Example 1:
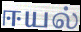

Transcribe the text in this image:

ஈயல்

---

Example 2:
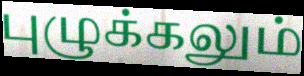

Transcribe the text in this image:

புழுக்கலும்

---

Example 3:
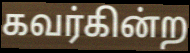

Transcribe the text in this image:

கவர்கின்ற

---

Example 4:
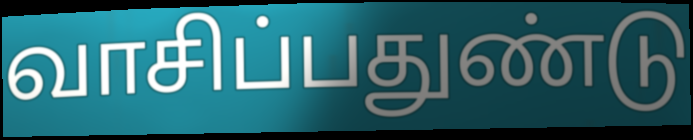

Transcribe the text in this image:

வாசிப்பதுண்டு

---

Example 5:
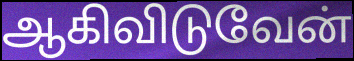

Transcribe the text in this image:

ஆகிவிடுவேன்